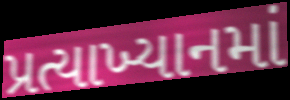
પ્રત્યાખ્યાનમાં